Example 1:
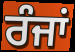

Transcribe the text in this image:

ਰੰਜਾਂ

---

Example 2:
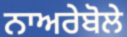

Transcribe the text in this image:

ਨਾਅਰੇਬੋਲੇ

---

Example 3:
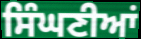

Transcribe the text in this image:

ਸਿੰਘਣੀਆਂ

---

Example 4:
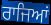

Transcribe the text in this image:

ਰਾਜਿਆਂ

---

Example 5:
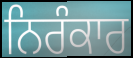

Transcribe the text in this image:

ਨਿਰੰਕਾਰ